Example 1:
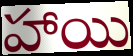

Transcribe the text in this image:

హాయి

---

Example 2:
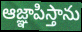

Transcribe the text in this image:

ఆజ్ఞాపిస్తాను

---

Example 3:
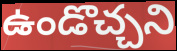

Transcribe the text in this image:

ఉండొచ్చని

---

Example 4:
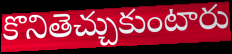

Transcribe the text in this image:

కొనితెచ్చుకుంటారు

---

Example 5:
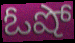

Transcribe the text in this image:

ఓషో